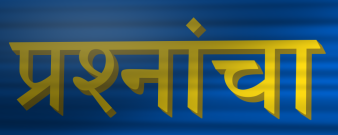
प्रश्‍नांचा